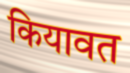
कियावत